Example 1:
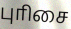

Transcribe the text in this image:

புரிசை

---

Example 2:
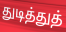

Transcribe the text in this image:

துடித்துத்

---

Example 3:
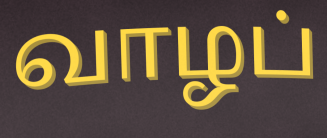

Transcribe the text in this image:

வாழப்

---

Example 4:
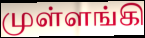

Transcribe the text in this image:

முள்ளங்கி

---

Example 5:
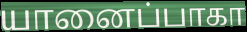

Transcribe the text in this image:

யானைப்பாகா